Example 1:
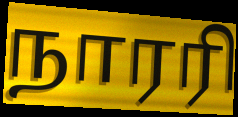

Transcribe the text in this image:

நாரரி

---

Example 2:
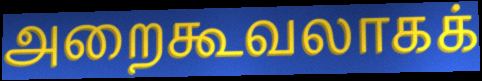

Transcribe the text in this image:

அறைகூவலாகக்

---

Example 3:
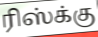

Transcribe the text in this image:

ரிஸ்க்கு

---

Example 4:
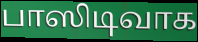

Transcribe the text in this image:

பாஸிடிவாக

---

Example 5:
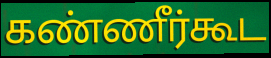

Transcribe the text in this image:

கண்ணீர்கூட